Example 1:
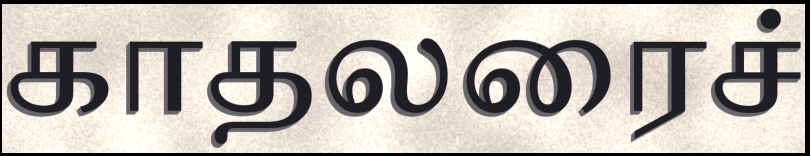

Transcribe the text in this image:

காதலரைச்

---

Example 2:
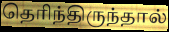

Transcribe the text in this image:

தெரிந்திருந்தால்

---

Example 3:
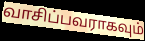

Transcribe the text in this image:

வாசிப்பவராகவும்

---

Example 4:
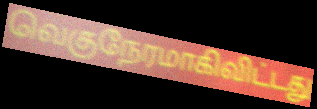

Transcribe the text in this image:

வெகுநேரமாகிவிட்டது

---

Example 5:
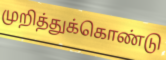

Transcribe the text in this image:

முறித்துக்கொண்டு